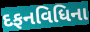
દફનવિધિના